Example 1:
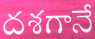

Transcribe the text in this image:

దశగానే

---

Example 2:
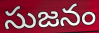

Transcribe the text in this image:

సుజనం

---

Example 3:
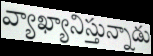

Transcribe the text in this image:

వ్యాఖ్యానిస్తున్నాడు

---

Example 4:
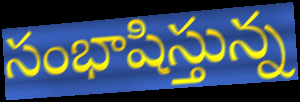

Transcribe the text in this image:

సంభాషిస్తున్న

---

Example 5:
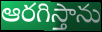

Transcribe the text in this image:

ఆరగిస్తాను